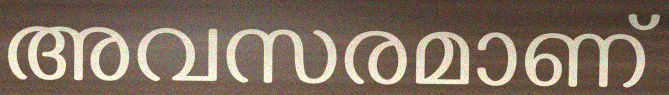
അവസരമാണ്